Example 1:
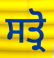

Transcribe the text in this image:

ਸਤ੍ਰੋ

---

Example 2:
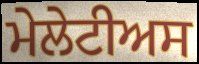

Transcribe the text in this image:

ਮੇਲੇਟੀਅਸ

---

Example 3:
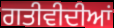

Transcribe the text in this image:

ਗਤੀਵੀਦੀਆਂ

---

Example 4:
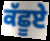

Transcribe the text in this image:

ਕੱਛੂਏ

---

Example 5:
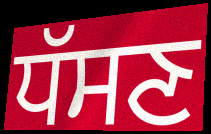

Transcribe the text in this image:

ਧੱਸਣ